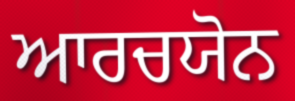
ਆਰਚਯੋਨ